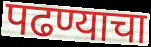
पढण्याचा